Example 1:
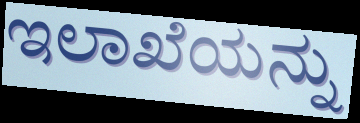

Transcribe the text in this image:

ಇಲಾಖೆಯನ್ನು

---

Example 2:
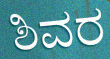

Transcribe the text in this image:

ಶಿವರ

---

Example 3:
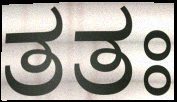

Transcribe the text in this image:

ತತಃ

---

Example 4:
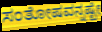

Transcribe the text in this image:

ಸಂತೋಷವನ್ನಷ್ಟೇ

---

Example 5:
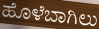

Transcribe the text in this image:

ಹೊಳೆಬಾಗಿಲು